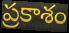
ప్రకాశం